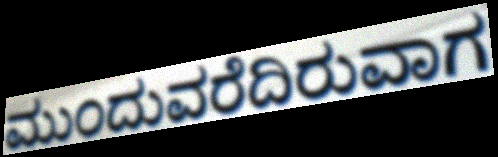
ಮುಂದುವರೆದಿರುವಾಗ